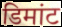
डिमांट